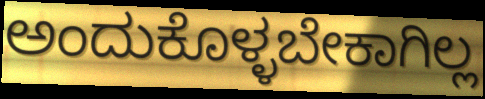
ಅಂದುಕೊಳ್ಳಬೇಕಾಗಿಲ್ಲ